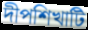
দীপশিখাটি